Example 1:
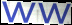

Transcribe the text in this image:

ww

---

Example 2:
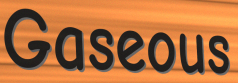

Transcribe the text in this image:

Gaseous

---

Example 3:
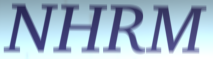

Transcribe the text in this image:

NHRM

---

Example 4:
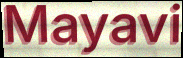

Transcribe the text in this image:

Mayavi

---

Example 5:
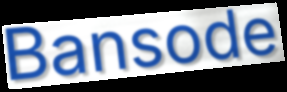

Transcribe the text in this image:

Bansode